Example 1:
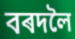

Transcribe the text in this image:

বৰদলৈ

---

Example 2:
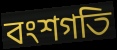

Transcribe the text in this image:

বংশগতি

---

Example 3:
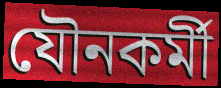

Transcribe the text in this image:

যৌনকৰ্মী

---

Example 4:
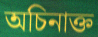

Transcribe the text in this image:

অচিনাক্ত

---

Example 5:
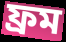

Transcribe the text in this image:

ফ্ৰম